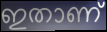
ഇതാണ്